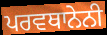
ਪਰਵਥਾਨੇਨੀ